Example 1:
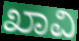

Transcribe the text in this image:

ಖಾವಿ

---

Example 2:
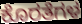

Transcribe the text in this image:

ಕೊರತೆಗಳ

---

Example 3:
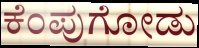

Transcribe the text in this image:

ಕೆಂಪುಗೋಡು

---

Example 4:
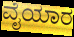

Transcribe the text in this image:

ವೈಯಾರ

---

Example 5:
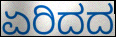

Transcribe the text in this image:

ಏರಿದದ